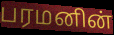
பரமனின்